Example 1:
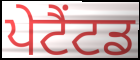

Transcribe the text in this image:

ਪੇਟੈਂਟਡ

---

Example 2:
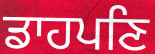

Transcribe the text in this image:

ਡਾਹਪਣਿ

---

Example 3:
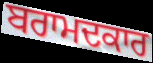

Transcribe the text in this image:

ਬਰਾਮਦਕਾਰ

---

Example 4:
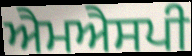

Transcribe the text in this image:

ਐਮਐਸਪੀ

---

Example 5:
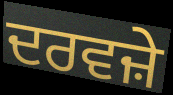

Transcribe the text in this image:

ਦਰਵਜ਼ੇ